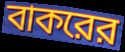
বাকরের